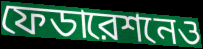
ফেডারেশনেও